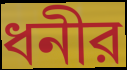
ধনীর